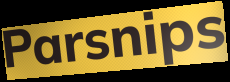
Parsnips